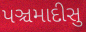
પઞ્ચમાદીસુ